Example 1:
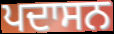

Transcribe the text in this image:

ਪਦਾਸਨ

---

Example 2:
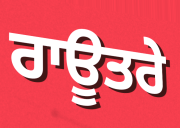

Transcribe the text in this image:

ਰਾਊਤਰੇ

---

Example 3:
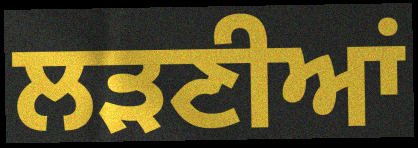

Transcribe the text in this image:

ਲੜਣੀਆਂ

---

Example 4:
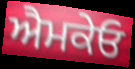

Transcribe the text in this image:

ਐਮਕੇਓ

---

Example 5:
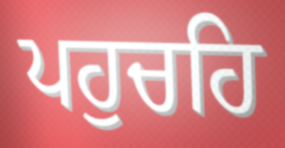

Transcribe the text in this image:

ਪਹੁਚਹਿ